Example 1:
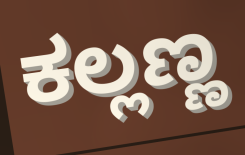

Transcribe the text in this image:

ಕಲ್ಲಣ್ಣ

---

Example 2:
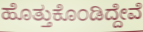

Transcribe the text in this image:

ಹೊತ್ತುಕೊಂಡಿದ್ದೇವೆ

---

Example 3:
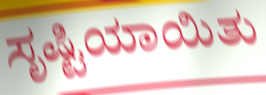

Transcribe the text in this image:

ಸೃಷ್ಟಿಯಾಯಿತು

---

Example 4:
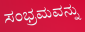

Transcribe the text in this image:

ಸಂಭ್ರಮವನ್ನು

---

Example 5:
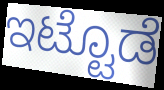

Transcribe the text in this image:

ಇಟ್ಟೊಡೆ